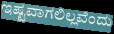
ಇಷ್ಟವಾಗಲಿಲ್ಲವೆಂದು